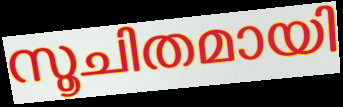
സൂചിതമായി